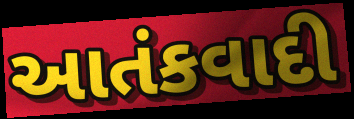
આતંકવાદી